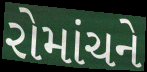
રોમાંચને